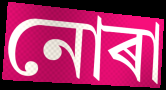
নোৰা